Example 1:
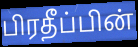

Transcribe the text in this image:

பிரதீப்பின்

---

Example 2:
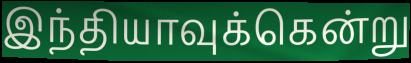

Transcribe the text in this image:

இந்தியாவுக்கென்று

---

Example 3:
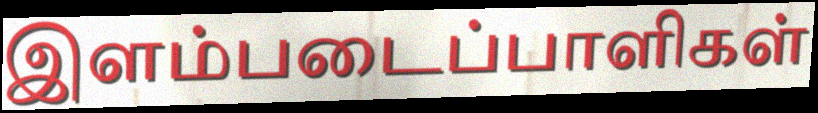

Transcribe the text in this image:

இளம்படைப்பாளிகள்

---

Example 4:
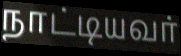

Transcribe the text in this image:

நாட்டியவர்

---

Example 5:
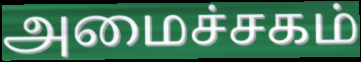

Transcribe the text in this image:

அமைச்சகம்